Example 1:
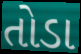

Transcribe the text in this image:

તોડા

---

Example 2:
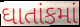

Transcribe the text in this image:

ઘાતાંકમાં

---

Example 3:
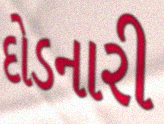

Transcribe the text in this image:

દોડનારી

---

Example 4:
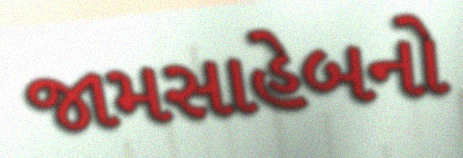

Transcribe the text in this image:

જામસાહેબનો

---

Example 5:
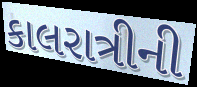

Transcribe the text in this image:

કાલરાત્રીની